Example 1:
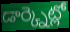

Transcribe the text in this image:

డార్క్నెట్లో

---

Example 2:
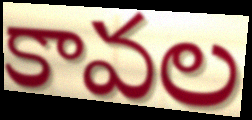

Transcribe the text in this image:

కావల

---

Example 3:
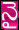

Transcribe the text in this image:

నై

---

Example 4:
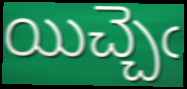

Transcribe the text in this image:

యిచ్చెఁ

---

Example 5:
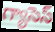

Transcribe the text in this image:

గ్యాసెస్